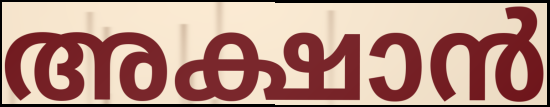
അക്ഷാൻ